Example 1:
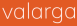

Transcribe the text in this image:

valarga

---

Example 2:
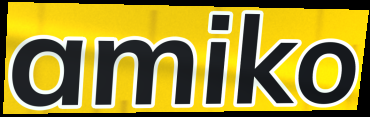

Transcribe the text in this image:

amiko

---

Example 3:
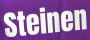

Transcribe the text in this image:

Steinen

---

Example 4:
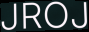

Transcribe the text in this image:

JROJ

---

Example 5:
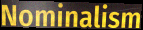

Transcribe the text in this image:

Nominalism